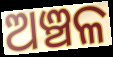
ଅଞ୍ଚଳ